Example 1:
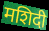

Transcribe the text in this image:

मशिदी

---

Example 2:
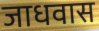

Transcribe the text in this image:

जाधवास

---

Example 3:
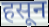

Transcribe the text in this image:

हसून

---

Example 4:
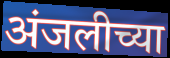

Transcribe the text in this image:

अंजलीच्या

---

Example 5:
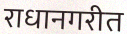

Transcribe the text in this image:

राधानगरीत